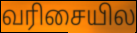
வரிசையில